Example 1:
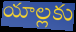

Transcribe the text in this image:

యాల్లకు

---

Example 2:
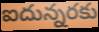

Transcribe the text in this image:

ఐదున్నరకు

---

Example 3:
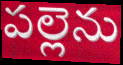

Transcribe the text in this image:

పల్లెను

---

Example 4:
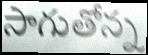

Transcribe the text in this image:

సాగుతోన్న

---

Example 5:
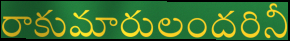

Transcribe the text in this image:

రాకుమారులందరినీ